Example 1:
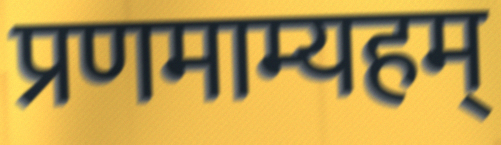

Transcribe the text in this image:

प्रणमाम्यहम्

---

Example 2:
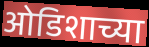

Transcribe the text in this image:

ओडिशाच्या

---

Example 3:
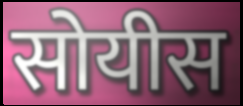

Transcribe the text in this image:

सोयीस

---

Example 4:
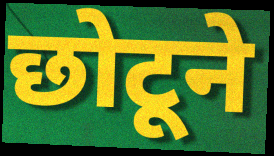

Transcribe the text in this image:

छोटूने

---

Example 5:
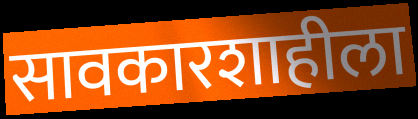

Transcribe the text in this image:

सावकारशाहीला